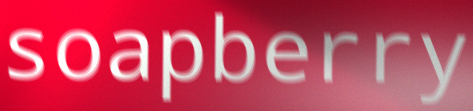
soapberry